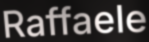
Raffaele